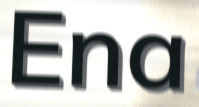
Ena